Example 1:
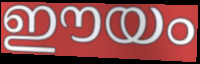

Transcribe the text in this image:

ഈയം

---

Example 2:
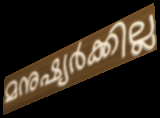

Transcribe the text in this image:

മനുഷ്യർക്കില്ല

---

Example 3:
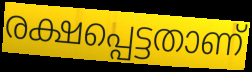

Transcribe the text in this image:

രക്ഷപ്പെട്ടതാണ്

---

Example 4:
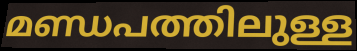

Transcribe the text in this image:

മണ്ഡപത്തിലുള്ള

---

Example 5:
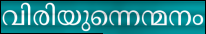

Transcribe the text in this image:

വിരിയുന്നെന്മനം